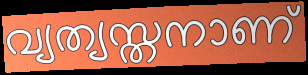
വ്യത്യസ്തനാണ്